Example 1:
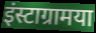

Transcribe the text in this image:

इंस्टाग्रामया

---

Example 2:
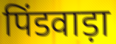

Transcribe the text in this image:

पिंडवाड़ा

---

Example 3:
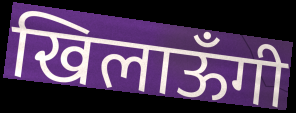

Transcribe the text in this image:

खिलाऊँगी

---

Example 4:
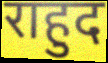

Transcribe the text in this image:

राहुद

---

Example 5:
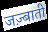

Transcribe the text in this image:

जज़्बाती